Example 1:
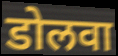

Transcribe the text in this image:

डोलवा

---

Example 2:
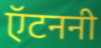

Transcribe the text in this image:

ऍटननी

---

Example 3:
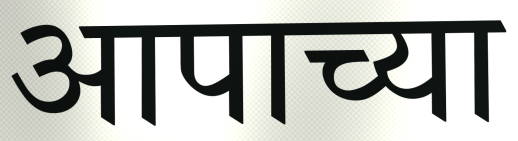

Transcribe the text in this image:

आपाच्या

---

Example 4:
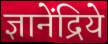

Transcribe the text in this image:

ज्ञानेंद्रिये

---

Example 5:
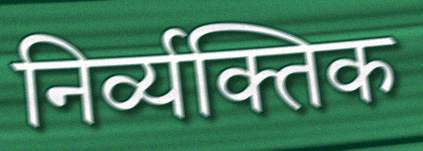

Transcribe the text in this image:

निर्व्यक्तिक